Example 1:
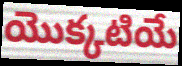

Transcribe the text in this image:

యొక్కటియే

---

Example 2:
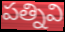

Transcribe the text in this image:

పత్నివి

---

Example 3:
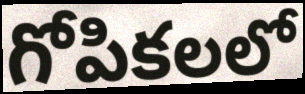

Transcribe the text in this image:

గోపికలలో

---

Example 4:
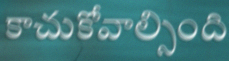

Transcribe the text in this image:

కాచుకోవాల్సింది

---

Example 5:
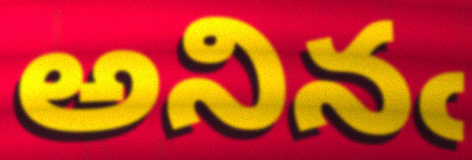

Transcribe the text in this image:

అనినఁ